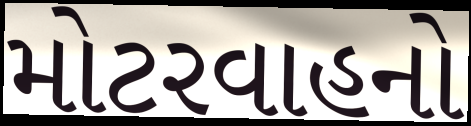
મોટરવાહનો